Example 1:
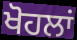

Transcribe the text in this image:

ਖੋਹਲਾਂ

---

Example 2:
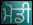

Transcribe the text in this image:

ਮੋਡੀ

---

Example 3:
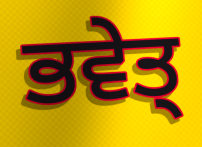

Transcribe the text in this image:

ਭਵੇਤ੍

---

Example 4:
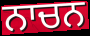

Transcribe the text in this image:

ਨਾਚਨ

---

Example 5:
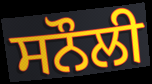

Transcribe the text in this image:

ਸਨੌਲੀ